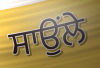
ਸਾਉਂਲੇ